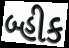
બ્હીક